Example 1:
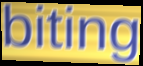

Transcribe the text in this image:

biting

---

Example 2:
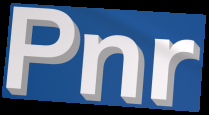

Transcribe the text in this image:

Pnr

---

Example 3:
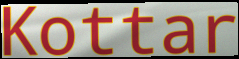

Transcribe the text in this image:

Kottar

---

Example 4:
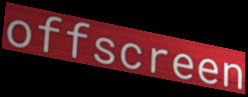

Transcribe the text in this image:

offscreen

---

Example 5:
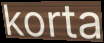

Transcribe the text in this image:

korta